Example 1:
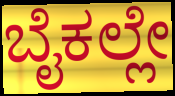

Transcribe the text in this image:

ಬೈಕಲ್ಲೇ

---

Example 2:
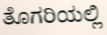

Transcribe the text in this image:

ತೊಗರಿಯಲ್ಲಿ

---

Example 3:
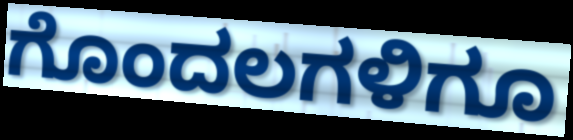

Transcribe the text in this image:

ಗೊಂದಲಗಳಿಗೂ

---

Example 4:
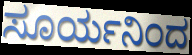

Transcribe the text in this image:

ಸೂರ್ಯನಿಂದ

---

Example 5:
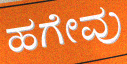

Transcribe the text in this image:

ಹಗೇವು